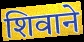
शिवाने